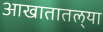
आखातातल्या